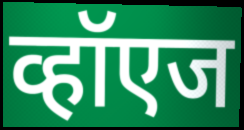
व्हॉएज